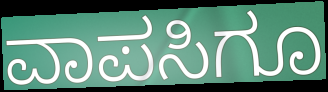
ವಾಪಸಿಗೂ